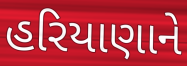
હરિયાણાને